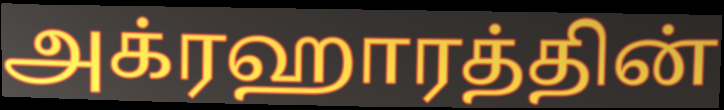
அக்ரஹாரத்தின்